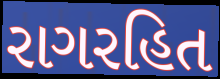
રાગરહિત